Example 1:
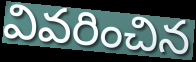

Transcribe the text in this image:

వివరించిన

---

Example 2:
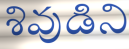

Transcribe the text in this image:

శివుడిని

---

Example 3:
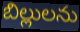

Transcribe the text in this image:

బిల్లులను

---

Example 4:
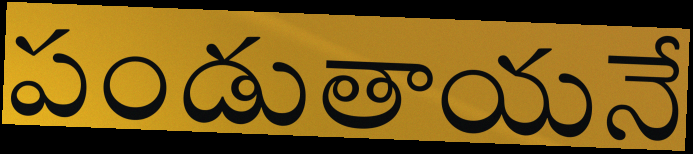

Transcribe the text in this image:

పండుతాయనే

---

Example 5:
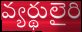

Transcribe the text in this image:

వ్యర్థులైరి